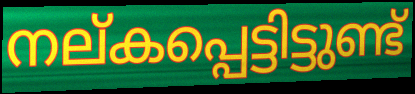
നല്കപ്പെട്ടിട്ടുണ്ട്